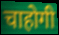
चाहोगी